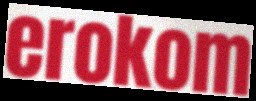
erokom